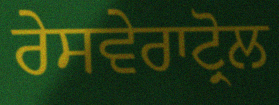
ਰੇਸਵੇਰਾਟ੍ਰੋਲ